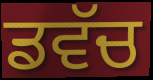
ਡਵੱਚ